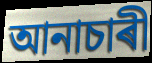
আনাচাৰী